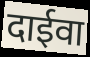
दाईवा